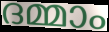
ദമ്മാം